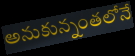
అనుకున్నంతలోనే